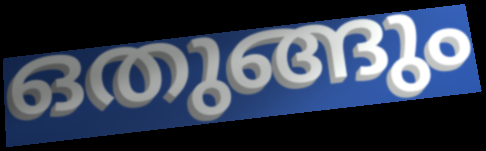
ഒതുങ്ങും